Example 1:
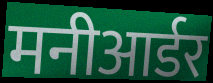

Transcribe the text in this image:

मनीआर्डर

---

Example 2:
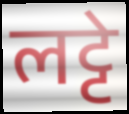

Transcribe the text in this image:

लट्टे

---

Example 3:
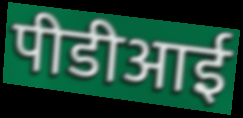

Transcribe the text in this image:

पीडीआई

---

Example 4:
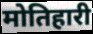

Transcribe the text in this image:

मोतिहारी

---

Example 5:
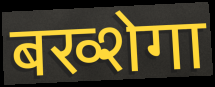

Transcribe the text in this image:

बख्शेगा